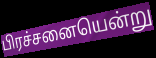
பிரச்சனையென்று